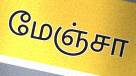
மேஞ்சா